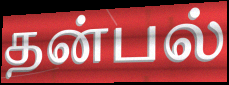
தன்பல்